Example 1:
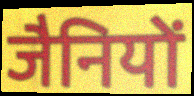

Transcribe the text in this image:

जैनियों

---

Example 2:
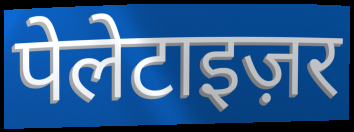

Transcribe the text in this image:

पेलेटाइज़र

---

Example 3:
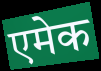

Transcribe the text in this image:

एमेक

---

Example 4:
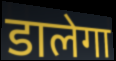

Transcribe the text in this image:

डालेगा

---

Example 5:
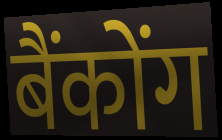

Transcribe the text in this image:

बैंकोंग